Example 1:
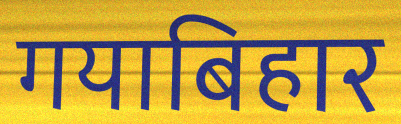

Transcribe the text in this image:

गयाबिहार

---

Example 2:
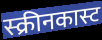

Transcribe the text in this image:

स्क्रीनकास्ट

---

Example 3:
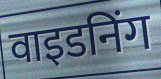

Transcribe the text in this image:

वाइडनिंग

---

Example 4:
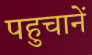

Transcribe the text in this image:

पहुचानें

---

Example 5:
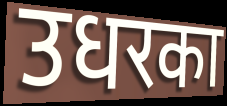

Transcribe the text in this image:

उधरका